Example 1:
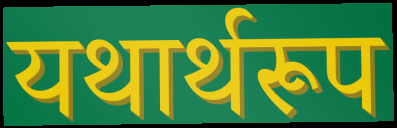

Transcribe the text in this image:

यथार्थरूप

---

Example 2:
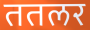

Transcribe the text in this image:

ततलर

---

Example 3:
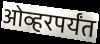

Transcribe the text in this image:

ओव्हरपर्यंत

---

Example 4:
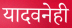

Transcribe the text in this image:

यादवनेही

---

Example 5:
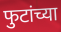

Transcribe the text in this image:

फुटांच्या